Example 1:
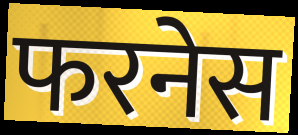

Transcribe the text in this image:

फरनेस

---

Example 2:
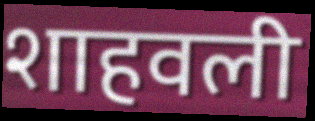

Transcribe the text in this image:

शाहवली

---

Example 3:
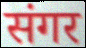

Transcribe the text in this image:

संगर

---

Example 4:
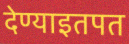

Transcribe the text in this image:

देण्याइतपत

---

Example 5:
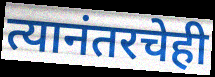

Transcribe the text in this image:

त्यानंतरचेही